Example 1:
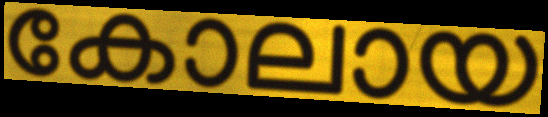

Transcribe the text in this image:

കോലായ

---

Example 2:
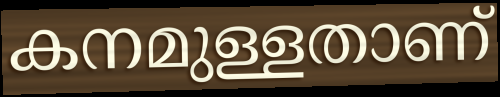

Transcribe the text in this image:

കനമുള്ളതാണ്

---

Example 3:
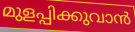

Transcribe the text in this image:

മുളപ്പിക്കുവാൻ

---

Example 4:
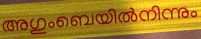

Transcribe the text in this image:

അഗുംബെയിൽനിന്നും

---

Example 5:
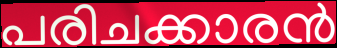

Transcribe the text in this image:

പരിചക്കാരൻ